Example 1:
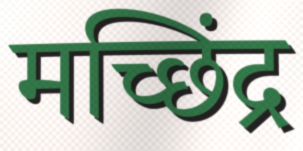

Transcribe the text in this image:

मच्छिंद्र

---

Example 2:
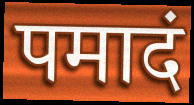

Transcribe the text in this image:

पमादं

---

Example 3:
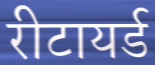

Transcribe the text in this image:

रीटायर्ड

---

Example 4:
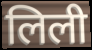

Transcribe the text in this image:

लिली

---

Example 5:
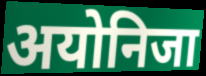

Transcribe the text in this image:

अयोनिजा